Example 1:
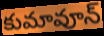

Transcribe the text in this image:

కుమావూన్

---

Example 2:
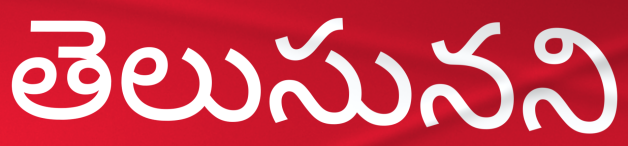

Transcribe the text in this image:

తెలుసునని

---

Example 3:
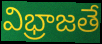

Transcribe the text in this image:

విభ్రాజతే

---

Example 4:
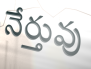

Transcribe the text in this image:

నేర్తువు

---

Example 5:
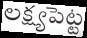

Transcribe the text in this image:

లక్ష్యపెట్ట